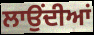
ਲਾਉਂਦੀਆਂ